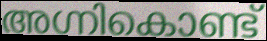
അഗ്നികൊണ്ട്